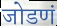
जोडणं